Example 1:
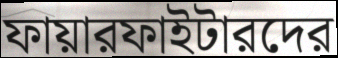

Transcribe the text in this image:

ফায়ারফাইটারদের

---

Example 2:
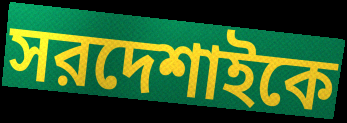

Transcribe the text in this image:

সরদেশাইকে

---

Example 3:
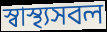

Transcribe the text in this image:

স্বাস্থ্যসবল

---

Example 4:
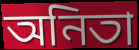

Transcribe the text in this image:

অনিতা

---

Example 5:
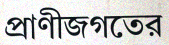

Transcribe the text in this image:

প্রাণীজগতের